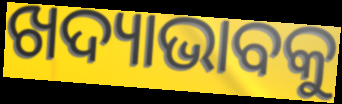
ଖଦ୍ୟାଭାବକୁ